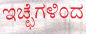
ಇಚ್ಛೆಗಳಿಂದ